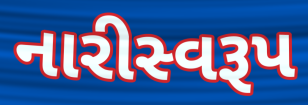
નારીસ્વરૂપ